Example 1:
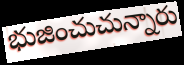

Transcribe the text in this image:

భుజించుచున్నారు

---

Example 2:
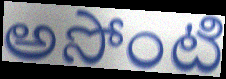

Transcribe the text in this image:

అసోంటి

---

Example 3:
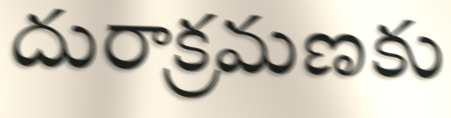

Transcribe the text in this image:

దురాక్రమణకు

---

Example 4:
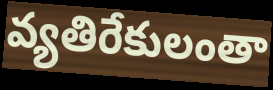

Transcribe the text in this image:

వ్యతిరేకులంతా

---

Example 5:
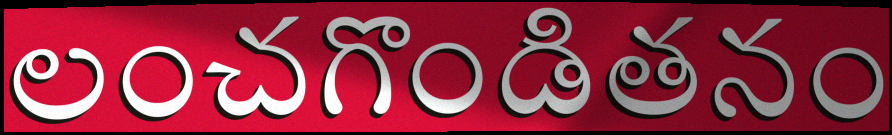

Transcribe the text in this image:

లంచగొండితనం